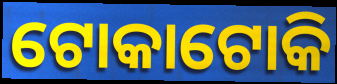
ଟୋକାଟୋକି